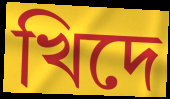
খিদে